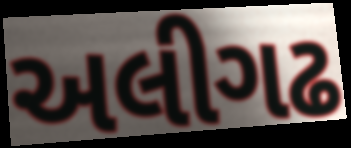
અલીગઢ